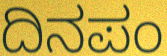
ದಿನಪಂ